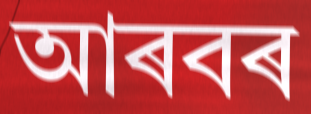
আৰবৰ